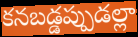
కనబడ్డప్పుడల్లా